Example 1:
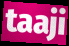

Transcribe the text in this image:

taaji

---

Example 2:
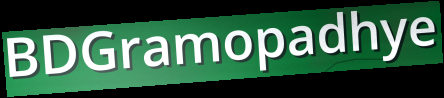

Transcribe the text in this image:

BDGramopadhye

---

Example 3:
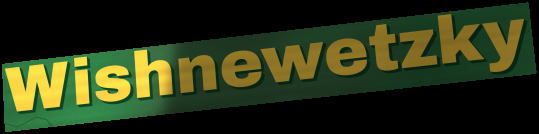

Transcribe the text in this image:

Wishnewetzky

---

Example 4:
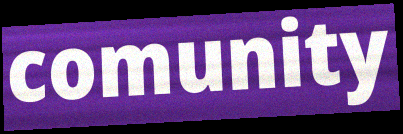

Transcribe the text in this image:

comunity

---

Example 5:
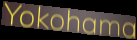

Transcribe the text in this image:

Yokohama